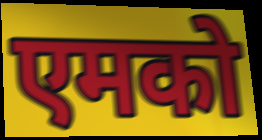
एमको